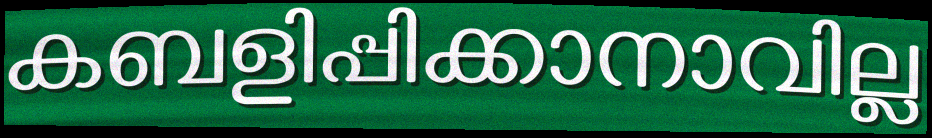
കബളിപ്പിക്കാനാവില്ല